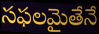
సఫలమైతేనే